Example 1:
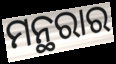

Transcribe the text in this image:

ମନ୍ଥରାର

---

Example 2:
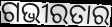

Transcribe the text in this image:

ଗଭୀରତାର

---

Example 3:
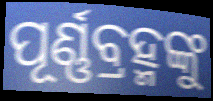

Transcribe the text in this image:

ପୂର୍ଣ୍ଣବ୍ରହ୍ମଙ୍କୁ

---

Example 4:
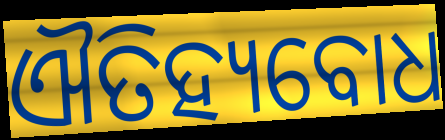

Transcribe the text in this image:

ଐତିହ୍ୟବୋଧ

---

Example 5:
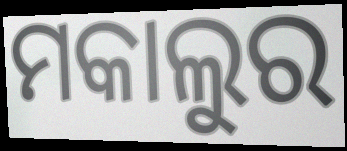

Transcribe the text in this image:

ମକାଲୁର